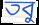
তবু